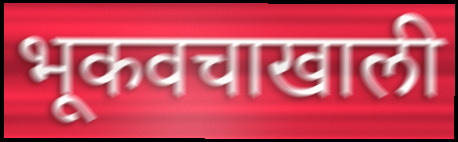
भूकवचाखाली